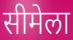
सीमेला